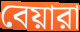
বেয়ারা